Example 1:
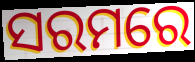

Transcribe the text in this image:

ସରମରେ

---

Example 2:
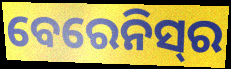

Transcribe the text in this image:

ବେରେନିସ୍‌ର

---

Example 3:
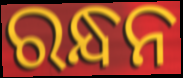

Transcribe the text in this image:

ରନ୍ଧନ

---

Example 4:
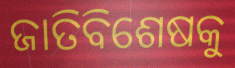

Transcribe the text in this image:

ଜାତିବିଶେଷକୁ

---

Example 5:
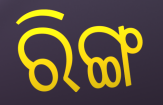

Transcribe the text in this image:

ରିଙ୍ଗ